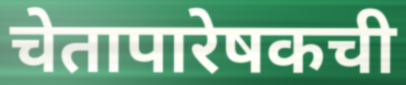
चेतापारेषकची